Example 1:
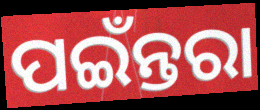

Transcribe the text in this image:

ପଇଁନ୍ତରା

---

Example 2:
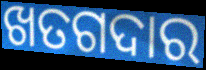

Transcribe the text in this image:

ଖତଗଦାର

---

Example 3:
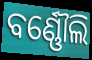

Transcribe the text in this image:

ବର୍ଣ୍ଣୌଲି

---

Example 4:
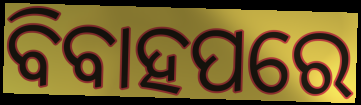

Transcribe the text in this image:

ବିବାହପରେ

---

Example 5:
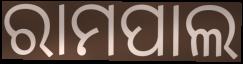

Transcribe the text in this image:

ରାମପାଲ